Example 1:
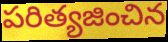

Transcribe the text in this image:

పరిత్యజించిన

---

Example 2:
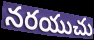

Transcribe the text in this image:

నరయుచు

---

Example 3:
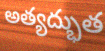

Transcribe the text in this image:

అత్యద్భుత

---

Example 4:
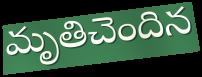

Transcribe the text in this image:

మృతిచెందిన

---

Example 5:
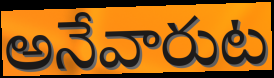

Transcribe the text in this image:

అనేవారుట